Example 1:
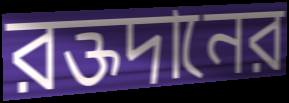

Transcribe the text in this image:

রক্তদানের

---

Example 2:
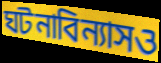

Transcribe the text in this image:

ঘটনাবিন্যাসও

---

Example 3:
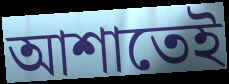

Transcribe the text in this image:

আশাতেই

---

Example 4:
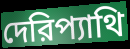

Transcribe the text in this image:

দেরিপ্যাথি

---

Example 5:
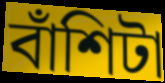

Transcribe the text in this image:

বাঁশিটা